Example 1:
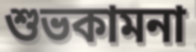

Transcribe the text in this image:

শুভকামনা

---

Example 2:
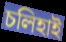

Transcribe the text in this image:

চলিহাই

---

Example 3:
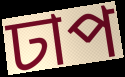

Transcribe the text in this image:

ঢাপ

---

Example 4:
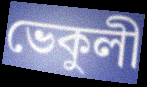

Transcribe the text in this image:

ভেকুলী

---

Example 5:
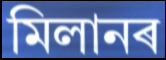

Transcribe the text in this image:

মিলানৰ